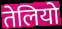
तेलियो